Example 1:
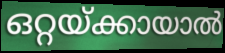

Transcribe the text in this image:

ഒറ്റയ്ക്കായാൽ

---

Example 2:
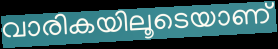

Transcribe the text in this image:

വാരികയിലൂടെയാണ്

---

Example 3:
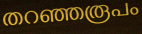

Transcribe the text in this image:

തറഞ്ഞരൂപം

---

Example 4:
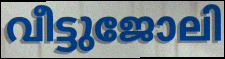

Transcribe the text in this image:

വീട്ടുജോലി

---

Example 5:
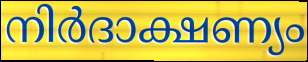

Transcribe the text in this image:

നിർദാക്ഷണ്യം